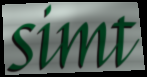
simt